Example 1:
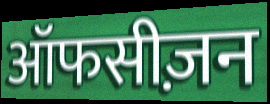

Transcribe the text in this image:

ऑफसीज़न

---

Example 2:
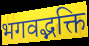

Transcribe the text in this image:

भगवद्भक्ति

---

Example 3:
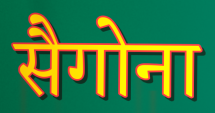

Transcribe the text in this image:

सैगोना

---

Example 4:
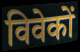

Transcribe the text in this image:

विवेकों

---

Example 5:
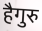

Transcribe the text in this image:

हैगुरु